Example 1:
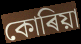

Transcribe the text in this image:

কোৰিয়া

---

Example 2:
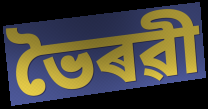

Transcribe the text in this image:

ভৈৰৱী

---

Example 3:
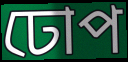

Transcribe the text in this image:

ঢোপ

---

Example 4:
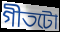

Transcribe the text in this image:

গীতটো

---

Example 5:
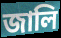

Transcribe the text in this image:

জালি